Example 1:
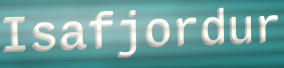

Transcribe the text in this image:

Isafjordur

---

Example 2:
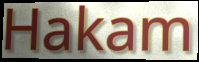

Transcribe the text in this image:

Hakam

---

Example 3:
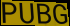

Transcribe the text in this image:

PUBG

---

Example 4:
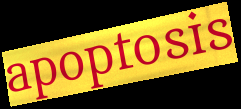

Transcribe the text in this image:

apoptosis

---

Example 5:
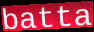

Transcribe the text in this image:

batta